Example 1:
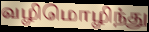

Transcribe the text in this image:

வழிமொழிந்து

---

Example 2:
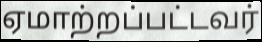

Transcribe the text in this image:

ஏமாற்றப்பட்டவர்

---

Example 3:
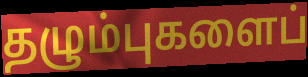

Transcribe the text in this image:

தழும்புகளைப்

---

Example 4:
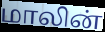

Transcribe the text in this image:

மாலின்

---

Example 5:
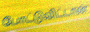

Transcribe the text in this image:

போட்டுவிட்டான்